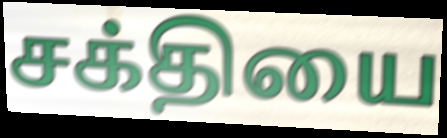
சக்தியை